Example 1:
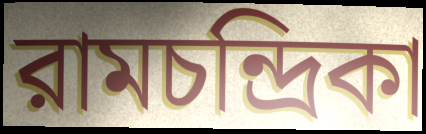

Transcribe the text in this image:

রামচন্দ্রিকা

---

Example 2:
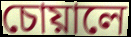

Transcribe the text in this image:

চোয়ালে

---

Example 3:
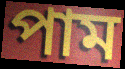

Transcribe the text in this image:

পাম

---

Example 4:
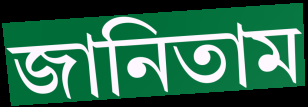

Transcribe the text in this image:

জানিতাম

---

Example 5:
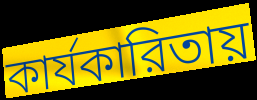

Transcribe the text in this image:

কার্যকারিতায়